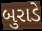
બુરાડે